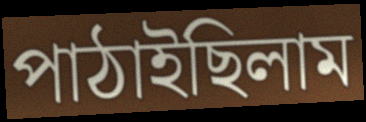
পাঠাইছিলাম